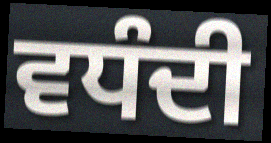
ਵਧੰਦੀ